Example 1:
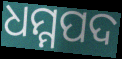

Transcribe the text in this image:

ଧମ୍ମପଦ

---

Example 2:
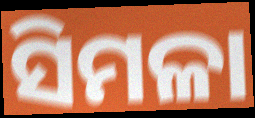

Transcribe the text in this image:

ସିମଳା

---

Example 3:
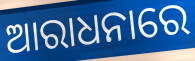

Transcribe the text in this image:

ଆରାଧନାରେ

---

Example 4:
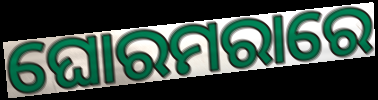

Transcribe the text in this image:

ଘୋରମରାରେ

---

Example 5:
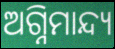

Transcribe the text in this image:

ଅଗ୍ନିମାନ୍ଦ୍ୟ